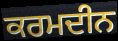
ਕਰਮਦੀਨ